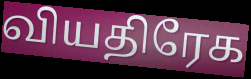
வியதிரேக